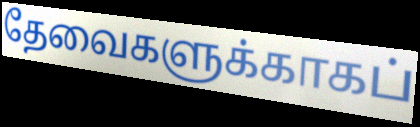
தேவைகளுக்காகப்